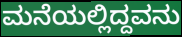
ಮನೆಯಲ್ಲಿದ್ದವನು